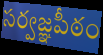
సర్వజ్ఞపీఠం